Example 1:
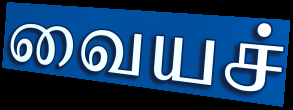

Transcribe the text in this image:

வையச்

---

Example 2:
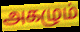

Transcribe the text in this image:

அகழும்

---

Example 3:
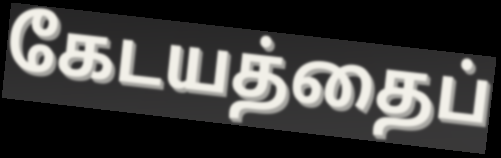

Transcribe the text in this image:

கேடயத்தைப்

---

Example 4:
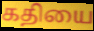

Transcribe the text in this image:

கதியை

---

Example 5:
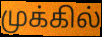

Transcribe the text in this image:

முக்கில்